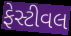
ફેસ્ટીવલ